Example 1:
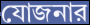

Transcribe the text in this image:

যোজনার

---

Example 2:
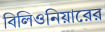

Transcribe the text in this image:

বিলিওনিয়ারের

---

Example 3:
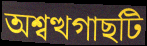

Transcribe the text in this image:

অশ্বত্থগাছটি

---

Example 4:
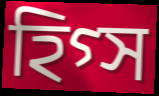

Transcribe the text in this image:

হিগ্স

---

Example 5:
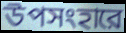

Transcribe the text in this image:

উপসংহারে